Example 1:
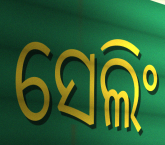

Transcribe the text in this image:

ସେଲିଂ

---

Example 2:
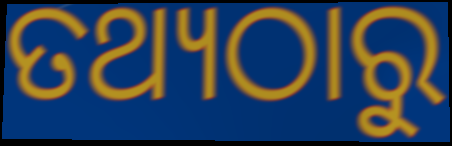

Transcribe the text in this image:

ତଥ୍ୟଠାରୁ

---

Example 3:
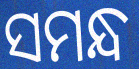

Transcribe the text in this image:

ସମନ୍ଧ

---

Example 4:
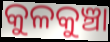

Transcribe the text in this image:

କୁଳକୁଞ୍ଚା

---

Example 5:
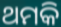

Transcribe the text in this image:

ଥମକି